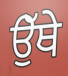
ਉੁੱਥੇ